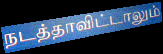
நடத்தாவிட்டாலும்